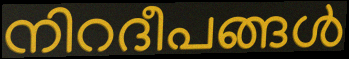
നിറദീപങ്ങൾ